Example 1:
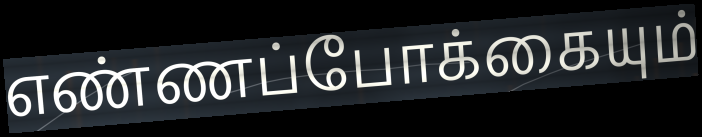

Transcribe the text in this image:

எண்ணப்போக்கையும்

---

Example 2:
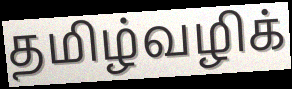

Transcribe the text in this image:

தமிழ்வழிக்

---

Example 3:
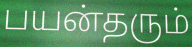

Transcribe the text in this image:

பயன்தரும்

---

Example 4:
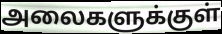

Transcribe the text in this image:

அலைகளுக்குள்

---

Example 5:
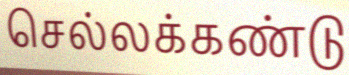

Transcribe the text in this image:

செல்லக்கண்டு